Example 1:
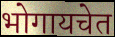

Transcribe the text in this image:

भोगायचेत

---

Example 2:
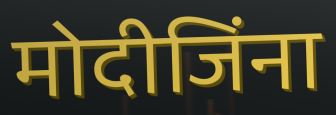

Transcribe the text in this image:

मोदीजिंना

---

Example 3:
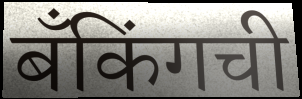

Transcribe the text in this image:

बँकिंगची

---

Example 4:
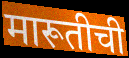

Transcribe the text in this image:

मारूतीची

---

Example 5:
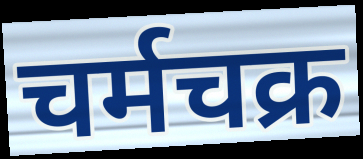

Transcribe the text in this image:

चर्मचक्र